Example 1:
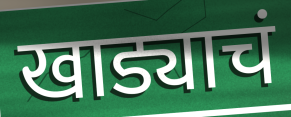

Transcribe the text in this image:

खाड्याचं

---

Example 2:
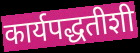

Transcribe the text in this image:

कार्यपद्धतीशी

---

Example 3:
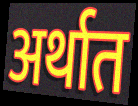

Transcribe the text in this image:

अर्थात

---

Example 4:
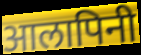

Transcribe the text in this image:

आलापिनी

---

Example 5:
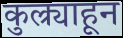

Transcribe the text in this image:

कुल्र्याहून